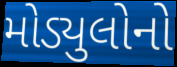
મોડ્યુલોનો